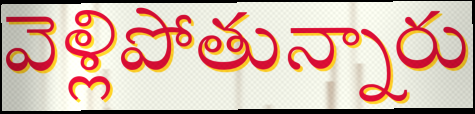
వెళ్లిపోతున్నారు